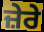
ਜ਼ੇਰੇ